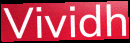
Vividh